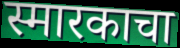
स्मारकाचा